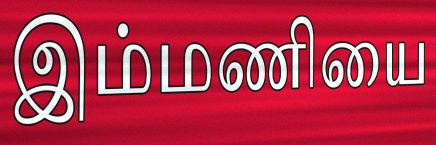
இம்மணியை